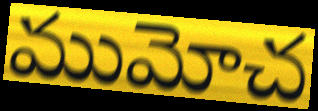
ముమోచ